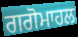
ਗਗੋਮਾਹਲ